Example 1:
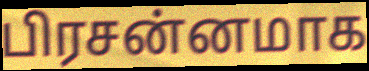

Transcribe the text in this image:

பிரசன்னமாக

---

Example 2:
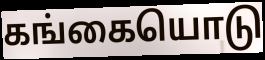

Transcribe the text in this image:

கங்கையொடு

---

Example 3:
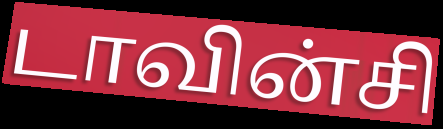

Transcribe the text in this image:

டாவின்சி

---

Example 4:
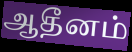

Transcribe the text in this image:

ஆதீனம்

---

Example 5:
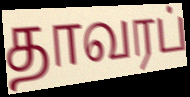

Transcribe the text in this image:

தாவரப்